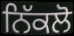
ਨਿੱਕਲੋ